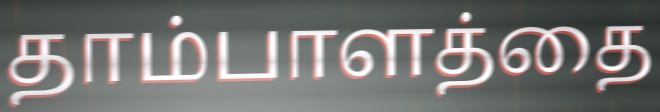
தாம்பாளத்தை